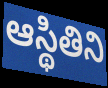
ఆస్థితిని